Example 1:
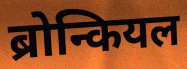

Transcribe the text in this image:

ब्रोन्कियल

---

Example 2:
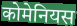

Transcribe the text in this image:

कोमेनियस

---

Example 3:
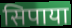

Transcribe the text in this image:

सिपाया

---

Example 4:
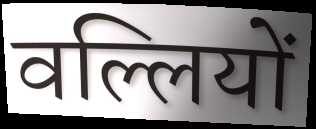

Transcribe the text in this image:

वल्लियों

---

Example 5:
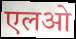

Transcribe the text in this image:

एलओ